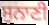
ਸੁਨਾਣੀ